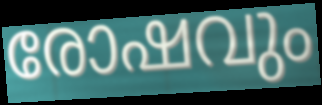
രോഷവും